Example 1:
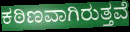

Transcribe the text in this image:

ಕಠಿಣವಾಗಿರುತ್ತವೆ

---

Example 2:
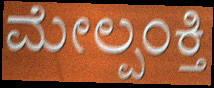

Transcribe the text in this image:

ಮೇಲ್ಪಂಕ್ತಿ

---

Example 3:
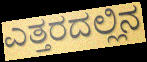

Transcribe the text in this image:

ಎತ್ತರದಲ್ಲಿನ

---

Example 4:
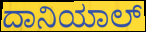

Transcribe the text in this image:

ದಾನಿಯಾಲ್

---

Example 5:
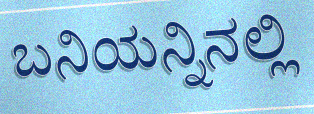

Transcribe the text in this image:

ಬನಿಯನ್ನಿನಲ್ಲಿ